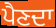
ਪੈਣਦਾ